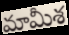
మామీశ